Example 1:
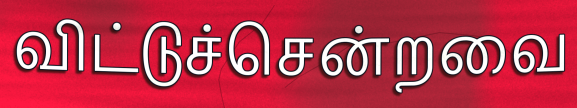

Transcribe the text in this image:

விட்டுச்சென்றவை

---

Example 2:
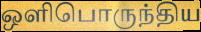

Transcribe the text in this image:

ஒளிபொருந்திய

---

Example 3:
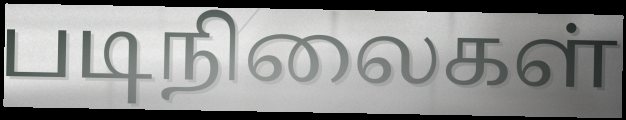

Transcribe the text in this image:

படிநிலைகள்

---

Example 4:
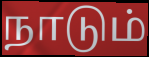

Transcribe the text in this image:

நாடும்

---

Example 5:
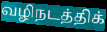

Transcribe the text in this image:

வழிநடத்திக்